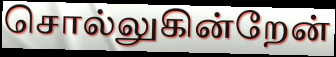
சொல்லுகின்றேன்